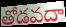
తోడవదా